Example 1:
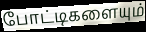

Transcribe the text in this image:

போட்டிகளையும்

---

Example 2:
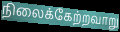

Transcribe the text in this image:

நிலைக்கேற்றவாறு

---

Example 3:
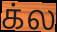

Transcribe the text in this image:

க்ல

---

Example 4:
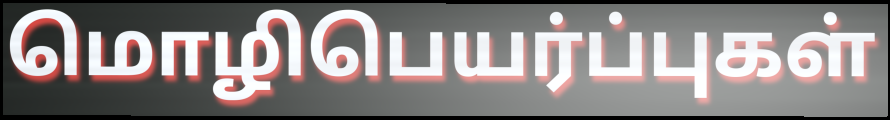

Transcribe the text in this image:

மொழிபெயர்ப்புகள்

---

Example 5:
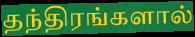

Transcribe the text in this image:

தந்திரங்களால்